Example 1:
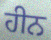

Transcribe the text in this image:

ਹੀਨ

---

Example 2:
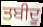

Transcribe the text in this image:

ਤਬੀਦੂ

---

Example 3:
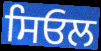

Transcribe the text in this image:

ਸਿਓਲ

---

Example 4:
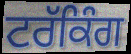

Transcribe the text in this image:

ਟਰੱਕਿੰਗ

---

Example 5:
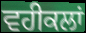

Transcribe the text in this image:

ਵਹੀਕਲਾਂ